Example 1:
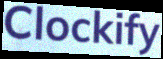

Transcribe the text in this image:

Clockify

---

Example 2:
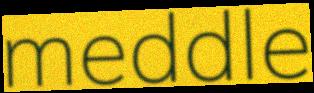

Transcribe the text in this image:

meddle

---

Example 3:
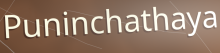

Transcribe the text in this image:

Puninchathaya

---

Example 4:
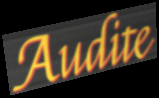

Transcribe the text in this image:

Audite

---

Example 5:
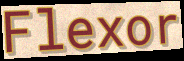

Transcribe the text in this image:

Flexor